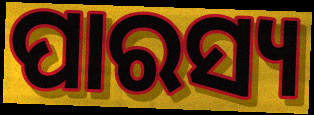
ପାରସ୍ୟ